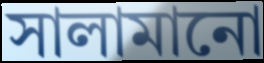
সালামানো